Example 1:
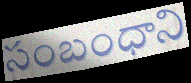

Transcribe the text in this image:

సంబంధాని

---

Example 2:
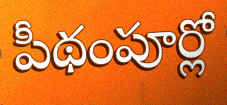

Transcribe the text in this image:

పీథంపూర్లో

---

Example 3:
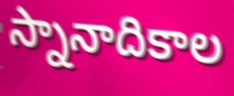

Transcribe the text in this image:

స్నానాదికాల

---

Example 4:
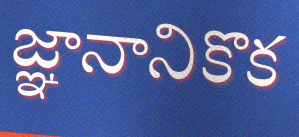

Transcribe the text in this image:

జ్ఞానానికొక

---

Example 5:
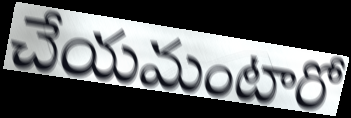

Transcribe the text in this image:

చేయమంటారో